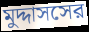
মুদ্দাসসের